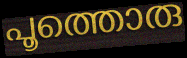
പൂത്തൊരു